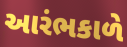
આરંભકાળે